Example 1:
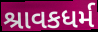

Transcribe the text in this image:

શ્રાવકધર્મ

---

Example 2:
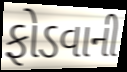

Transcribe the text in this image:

ફોડવાની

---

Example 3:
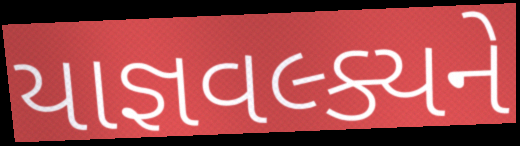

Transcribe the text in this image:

યાજ્ઞવલ્ક્યને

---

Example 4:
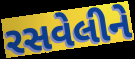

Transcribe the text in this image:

રસવેલીને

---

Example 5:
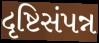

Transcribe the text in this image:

દૃષ્ટિસંપન્ન